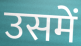
उसमें